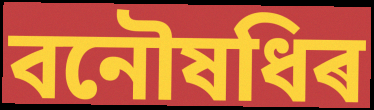
বনৌষধিৰ